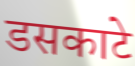
डसकाटे